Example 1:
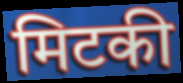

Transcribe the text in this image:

मिटकी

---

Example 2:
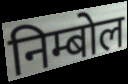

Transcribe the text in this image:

निम्बोल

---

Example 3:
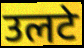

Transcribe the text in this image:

उलटे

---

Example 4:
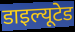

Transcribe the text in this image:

डाइल्यूटेड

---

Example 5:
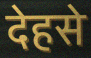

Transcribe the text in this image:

देहसे